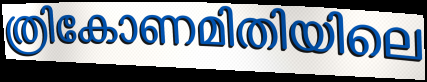
ത്രികോണമിതിയിലെ